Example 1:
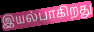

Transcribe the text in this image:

இயல்பாகிறது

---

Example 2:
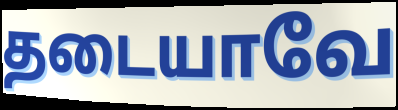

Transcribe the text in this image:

தடையாவே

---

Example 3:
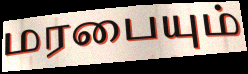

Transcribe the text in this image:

மரபையும்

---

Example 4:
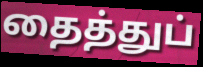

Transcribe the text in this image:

தைத்துப்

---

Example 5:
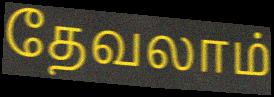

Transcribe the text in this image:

தேவலாம்